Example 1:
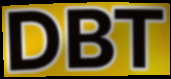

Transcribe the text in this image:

DBT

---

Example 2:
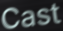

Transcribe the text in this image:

Cast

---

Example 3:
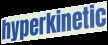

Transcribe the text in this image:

hyperkinetic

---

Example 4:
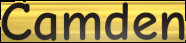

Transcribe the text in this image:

Camden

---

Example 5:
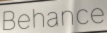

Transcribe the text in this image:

Behance